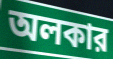
অলকার